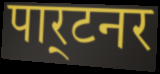
पार्टनर